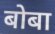
बोबा